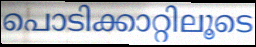
പൊടിക്കാറ്റിലൂടെ